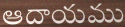
ఆదాయము